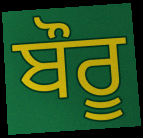
ਬੌਰੂ